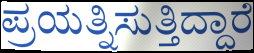
ಪ್ರಯತ್ನಿಸುತ್ತಿದ್ದಾರೆ